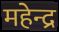
महेन्द्र